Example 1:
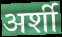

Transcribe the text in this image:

अर्शी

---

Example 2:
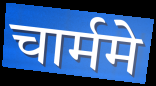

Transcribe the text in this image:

चार्ममे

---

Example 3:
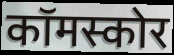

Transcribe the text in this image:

कॉमस्कोर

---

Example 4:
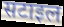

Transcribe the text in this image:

सटाइल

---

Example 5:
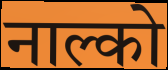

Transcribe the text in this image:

नाल्को